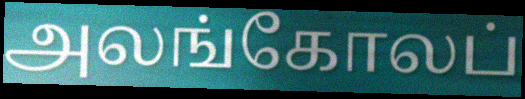
அலங்கோலப்